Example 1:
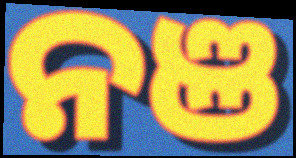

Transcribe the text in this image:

ନଞ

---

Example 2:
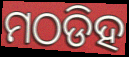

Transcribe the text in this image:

ମଠଡିହ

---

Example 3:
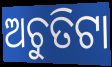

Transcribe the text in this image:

ଅଚୁତିଟା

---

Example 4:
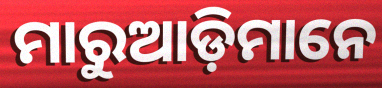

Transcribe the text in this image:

ମାରୁଆଡ଼ିମାନେ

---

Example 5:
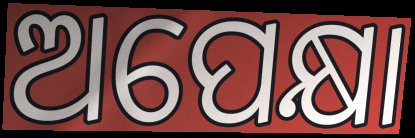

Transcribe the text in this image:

ଅପେକ୍ଷା